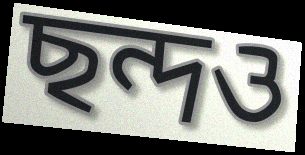
ছন্দও